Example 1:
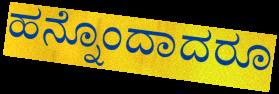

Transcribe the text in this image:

ಹನ್ನೊಂದಾದರೂ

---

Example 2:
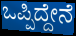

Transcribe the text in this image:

ಒಪ್ಪಿದ್ದೇನೆ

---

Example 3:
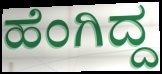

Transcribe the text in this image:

ಹೆಂಗಿದ್ದ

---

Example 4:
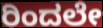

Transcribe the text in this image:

ರಿಂದಲೇ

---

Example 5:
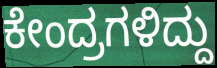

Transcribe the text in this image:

ಕೇಂದ್ರಗಳಿದ್ದು